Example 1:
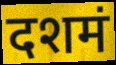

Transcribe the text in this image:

दशमं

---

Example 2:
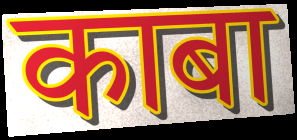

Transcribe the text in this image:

काबा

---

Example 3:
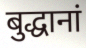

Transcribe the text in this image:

बुद्धानां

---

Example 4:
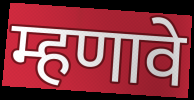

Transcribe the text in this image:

म्हणावे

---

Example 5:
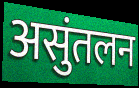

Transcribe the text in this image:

असुंतलन